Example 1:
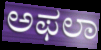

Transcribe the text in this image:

ಅಫಲಾ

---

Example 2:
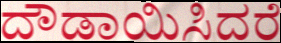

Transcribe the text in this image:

ದೌಡಾಯಿಸಿದರೆ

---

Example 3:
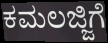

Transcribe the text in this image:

ಕಮಲಜ್ಜಿಗೆ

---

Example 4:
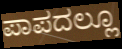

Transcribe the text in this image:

ಪಾಪದಲ್ಲೂ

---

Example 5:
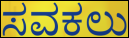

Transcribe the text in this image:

ಸವಕಲು